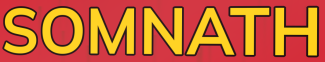
SOMNATH